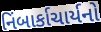
નિંબાર્કાચાર્યનો